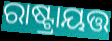
ରାଷ୍ଟ୍ରାୟତ୍ତ